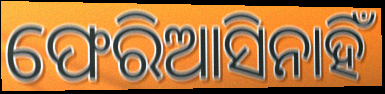
ଫେରିଆସିନାହିଁ